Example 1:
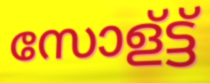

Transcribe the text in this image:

സോള്ട്ട്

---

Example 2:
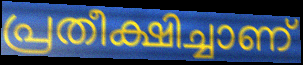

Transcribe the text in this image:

പ്രതീക്ഷിച്ചാണ്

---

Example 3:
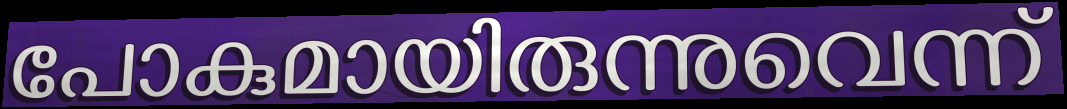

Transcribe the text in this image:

പോകുമായിരുന്നുവെന്ന്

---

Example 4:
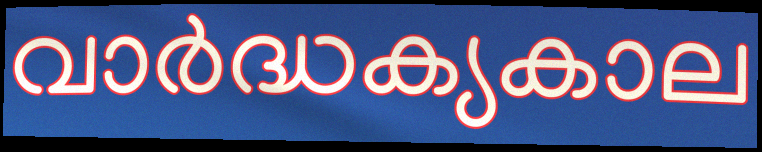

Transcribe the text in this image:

വാർദ്ധക്യകാല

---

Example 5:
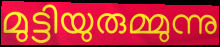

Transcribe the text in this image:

മുട്ടിയുരുമ്മുന്നു